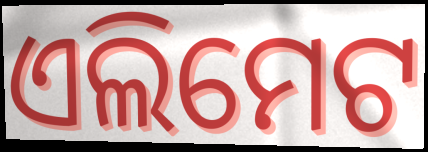
ଏଲିମେଟ